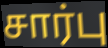
சார்பு